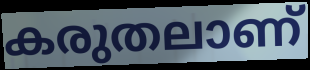
കരുതലാണ്